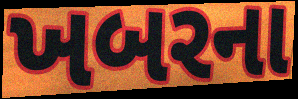
ખબરના